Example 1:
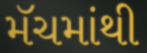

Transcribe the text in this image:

મૅચમાંથી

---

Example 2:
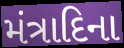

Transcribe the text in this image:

મંત્રાદિના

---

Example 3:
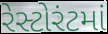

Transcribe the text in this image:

રેસ્ટોરંટમાં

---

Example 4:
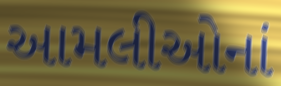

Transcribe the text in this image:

આમલીઓનાં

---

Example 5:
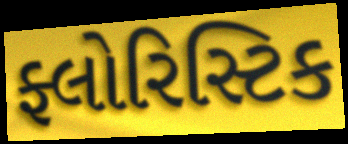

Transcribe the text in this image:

ફ્લોરિસ્ટિક